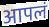
आपलं